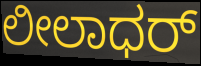
ಲೀಲಾಧರ್